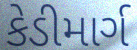
કેડીમાર્ગ